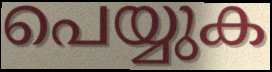
പെയ്യുക